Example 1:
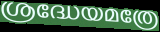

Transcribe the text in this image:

ശ്രദ്ധേയമത്രേ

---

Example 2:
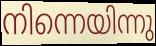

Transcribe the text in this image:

നിന്നെയിന്നു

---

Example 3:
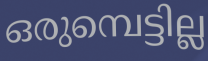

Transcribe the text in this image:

ഒരുമ്പെട്ടില്ല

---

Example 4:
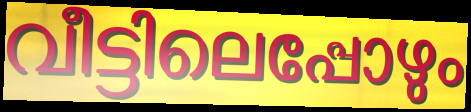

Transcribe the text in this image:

വീട്ടിലെപ്പോഴും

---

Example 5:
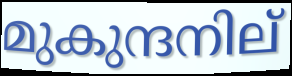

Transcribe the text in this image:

മുകുന്ദനില്